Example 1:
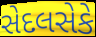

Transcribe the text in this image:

સેદલસેકે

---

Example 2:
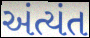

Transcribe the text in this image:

અંત્યંત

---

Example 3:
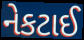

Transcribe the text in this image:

નેકટાઈ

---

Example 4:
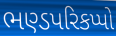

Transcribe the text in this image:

ભણ્ડપરિકપ્પો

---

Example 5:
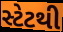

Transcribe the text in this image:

સ્ટેટથી